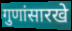
गुणांसारखे